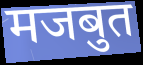
मजबुत